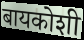
बायकोशी